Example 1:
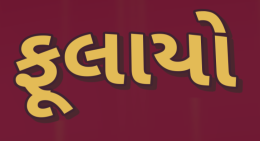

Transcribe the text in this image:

ફૂલાયો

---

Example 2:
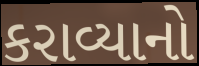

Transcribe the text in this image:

કરાવ્યાનો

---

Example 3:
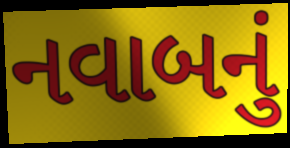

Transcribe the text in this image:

નવાબનું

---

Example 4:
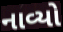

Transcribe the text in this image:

નાવ્યો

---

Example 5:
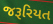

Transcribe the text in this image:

જરૂરિયત